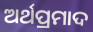
ଅର୍ଥପ୍ରମାଦ